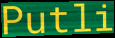
Putli